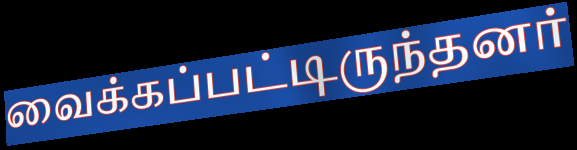
வைக்கப்பட்டிருந்தனர்